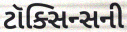
ટૉક્સિન્સની